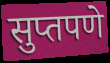
सुप्तपणे